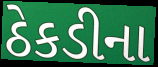
ઠેકડીના